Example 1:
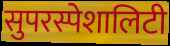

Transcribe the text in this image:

सुपरस्पेशालिटी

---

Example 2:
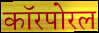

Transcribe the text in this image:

कॉरपोरल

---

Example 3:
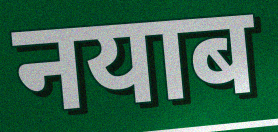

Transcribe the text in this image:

नयाब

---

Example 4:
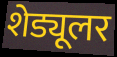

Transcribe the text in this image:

शेड्यूलर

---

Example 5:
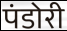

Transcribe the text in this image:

पंडोरी